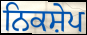
ਨਿਕਸ਼ੇਪ